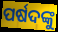
ପର୍ଷଦଙ୍କୁ